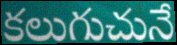
కలుగుచునే